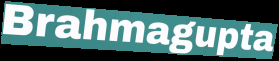
Brahmagupta